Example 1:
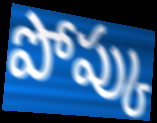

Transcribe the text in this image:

పోప్కు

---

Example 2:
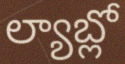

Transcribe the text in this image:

ల్యాబ్లో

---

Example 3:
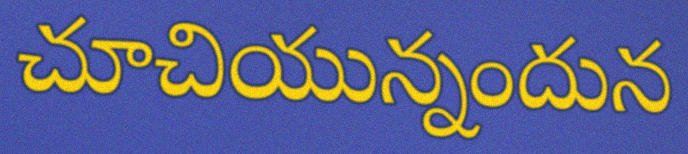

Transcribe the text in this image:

చూచియున్నందున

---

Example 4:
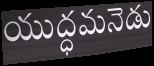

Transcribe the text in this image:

యుద్ధమనెడు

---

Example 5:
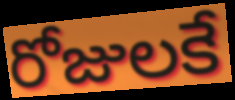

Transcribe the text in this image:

రోజులకే